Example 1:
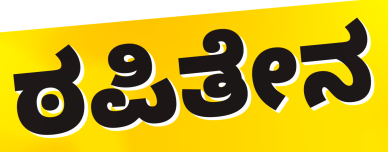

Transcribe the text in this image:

ಠಪಿತೇನ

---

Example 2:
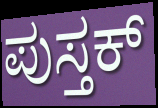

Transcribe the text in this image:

ಪುಸ್ತಕ್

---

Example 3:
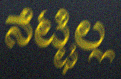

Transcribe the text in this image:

ನೆಟ್ಟಿಲ್ಲ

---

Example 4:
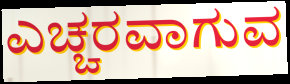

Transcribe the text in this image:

ಎಚ್ಚರವಾಗುವ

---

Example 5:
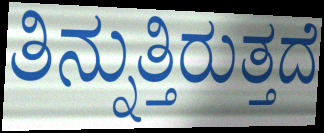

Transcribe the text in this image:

ತಿನ್ನುತ್ತಿರುತ್ತದೆ